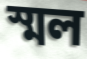
স্মল